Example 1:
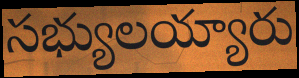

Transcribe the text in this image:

సభ్యులయ్యారు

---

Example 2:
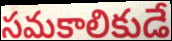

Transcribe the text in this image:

సమకాలికుడే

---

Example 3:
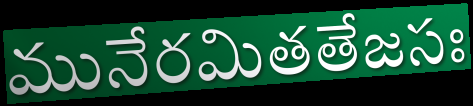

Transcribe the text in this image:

మునేరమితతేజసః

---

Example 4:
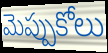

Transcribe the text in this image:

మెప్పుకోలు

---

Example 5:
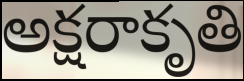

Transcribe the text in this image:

అక్షరాకృతి